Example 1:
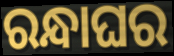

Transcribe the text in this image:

ରନ୍ଧାଘର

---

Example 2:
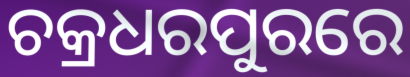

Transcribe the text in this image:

ଚକ୍ରଧରପୁରରେ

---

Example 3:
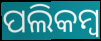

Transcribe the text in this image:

ପଲିକମ୍ବ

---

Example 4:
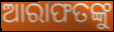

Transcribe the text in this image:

ଆରାଫତଙ୍କୁ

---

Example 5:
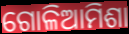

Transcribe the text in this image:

ଗୋଳିଆମିଶା